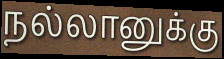
நல்லானுக்கு